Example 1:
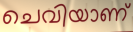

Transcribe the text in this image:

ചെവിയാണ്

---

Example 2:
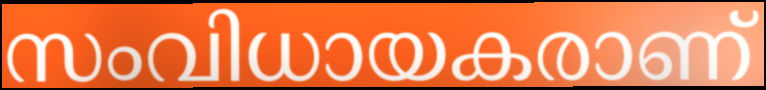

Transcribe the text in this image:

സംവിധായകരാണ്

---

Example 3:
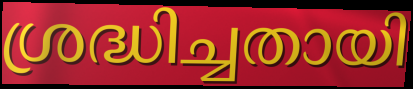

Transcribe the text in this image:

ശ്രദ്ധിച്ചതായി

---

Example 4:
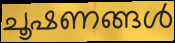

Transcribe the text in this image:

ചൂഷണങ്ങൾ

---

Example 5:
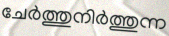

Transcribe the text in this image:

ചേർത്തുനിർത്തുന്ന